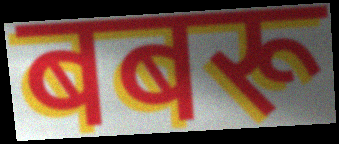
बबरू